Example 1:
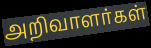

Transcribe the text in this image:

அறிவாளர்கள்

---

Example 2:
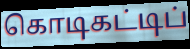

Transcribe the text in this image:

கொடிகட்டிப்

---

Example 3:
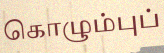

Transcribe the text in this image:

கொழும்புப்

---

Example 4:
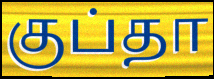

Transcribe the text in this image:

குப்தா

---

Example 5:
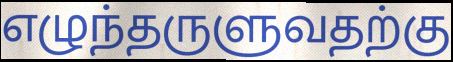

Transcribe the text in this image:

எழுந்தருளுவதற்கு